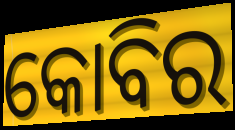
କୋବିର